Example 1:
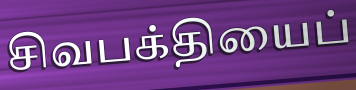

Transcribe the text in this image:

சிவபக்தியைப்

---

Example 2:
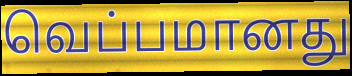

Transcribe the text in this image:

வெப்பமானது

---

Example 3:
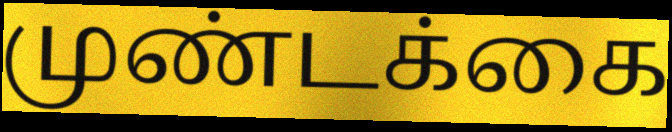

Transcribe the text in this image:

முண்டக்கை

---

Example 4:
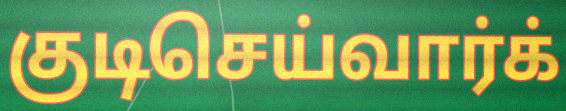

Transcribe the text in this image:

குடிசெய்வார்க்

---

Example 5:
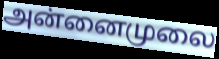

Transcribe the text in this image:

அன்னைமுலை